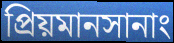
প্রিয়মানসানাং